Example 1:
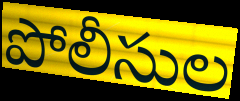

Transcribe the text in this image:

పోలీసుల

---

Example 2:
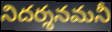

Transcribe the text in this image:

నిదర్శనమనీ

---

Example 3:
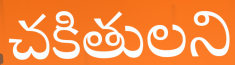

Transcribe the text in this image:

చకితులని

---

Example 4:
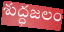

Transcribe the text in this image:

శుద్ధజలం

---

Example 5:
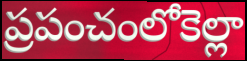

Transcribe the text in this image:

ప్రపంచంలోకెల్లా